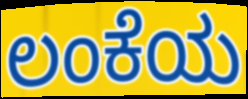
ಲಂಕೆಯ